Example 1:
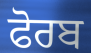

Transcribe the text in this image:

ਫੋਰਬ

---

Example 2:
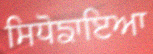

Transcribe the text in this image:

ਸਿਧੋਙਾਇਆ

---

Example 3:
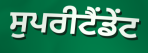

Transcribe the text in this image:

ਸੁਪਰੀਟੈਂਡੇਂਟ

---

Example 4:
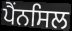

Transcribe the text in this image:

ਪੈਂਨਸਿਲ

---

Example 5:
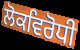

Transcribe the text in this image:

ਲੋਕਵਿਰੋਧੀ